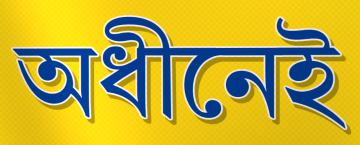
অধীনেই